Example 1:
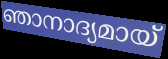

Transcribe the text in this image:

ഞാനാദ്യമായ്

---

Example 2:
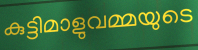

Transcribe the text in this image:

കുട്ടിമാളുവമ്മയുടെ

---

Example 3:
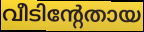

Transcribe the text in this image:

വീടിന്റേതായ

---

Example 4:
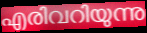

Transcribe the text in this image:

എരിവറിയുന്നു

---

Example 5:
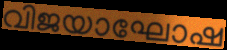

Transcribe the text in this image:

വിജയാഘോഷ